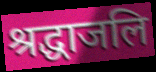
श्रद्धाजलि